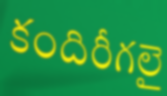
కందిరీగలై